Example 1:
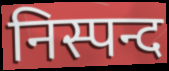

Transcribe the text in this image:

निस्पन्द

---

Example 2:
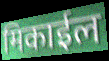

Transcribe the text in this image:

मिकाईल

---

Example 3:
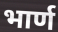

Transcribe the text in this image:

भार्ण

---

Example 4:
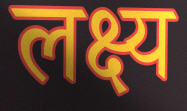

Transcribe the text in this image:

लक्ष्य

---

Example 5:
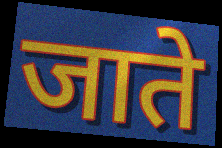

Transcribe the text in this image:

जाते